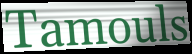
Tamouls